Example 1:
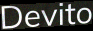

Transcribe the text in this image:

Devito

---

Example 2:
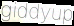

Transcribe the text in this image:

giddyup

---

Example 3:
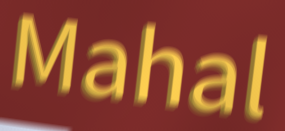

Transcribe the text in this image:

Mahal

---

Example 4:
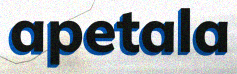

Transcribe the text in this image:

apetala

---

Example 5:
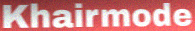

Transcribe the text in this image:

Khairmode